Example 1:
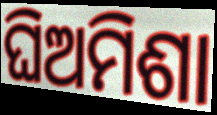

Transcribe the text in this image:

ଘିଅମିଶା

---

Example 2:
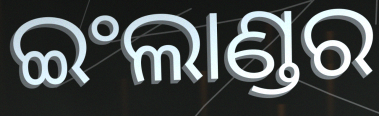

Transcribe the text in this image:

ଇଂଲାଣ୍ଡର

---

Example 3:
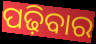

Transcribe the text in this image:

ପଢ଼ିବାର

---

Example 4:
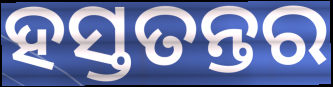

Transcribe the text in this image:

ହସ୍ତତନ୍ତର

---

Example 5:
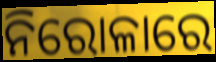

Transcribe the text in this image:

ନିରୋଳାରେ